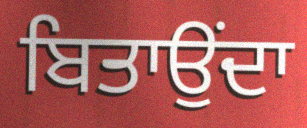
ਬਿਤਾਉਂਦਾ